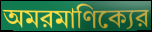
অমরমাণিক্যের